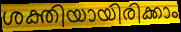
ശക്തിയായിരിക്കാം